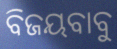
ବିଜୟବାବୁ